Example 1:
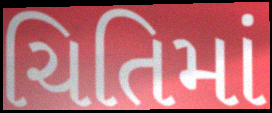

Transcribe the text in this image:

ચિતિમાં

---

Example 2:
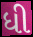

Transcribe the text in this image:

ધી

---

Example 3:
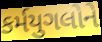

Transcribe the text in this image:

કર્મયુગલોને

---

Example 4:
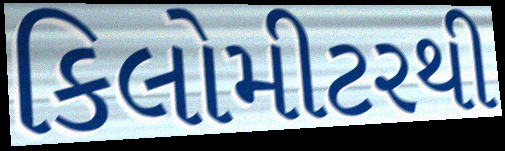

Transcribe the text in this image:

કિલોમીટરથી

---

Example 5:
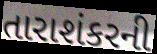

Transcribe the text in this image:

તારાશંકરની